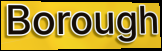
Borough